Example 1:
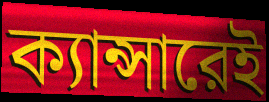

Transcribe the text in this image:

ক্যান্সারেই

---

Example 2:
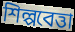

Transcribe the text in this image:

শিল্পবেত্তা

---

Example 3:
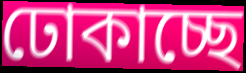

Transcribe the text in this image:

ঢোকাচ্ছে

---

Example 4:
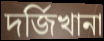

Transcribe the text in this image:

দর্জিখানা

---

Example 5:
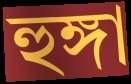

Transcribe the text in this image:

হুঙ্গা